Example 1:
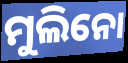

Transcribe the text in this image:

ମୁଲିନୋ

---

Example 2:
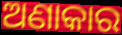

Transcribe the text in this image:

ଅଣାକାର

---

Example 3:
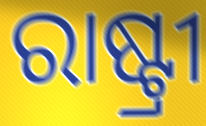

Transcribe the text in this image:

ରାଷ୍ଟ୍ରୀ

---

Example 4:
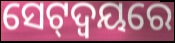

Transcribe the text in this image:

ସେଟ୍‌ଦ୍ଵୟରେ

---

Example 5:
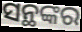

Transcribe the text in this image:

ସନ୍ଥଙ୍କର